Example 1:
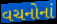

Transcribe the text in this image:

વચનોનાં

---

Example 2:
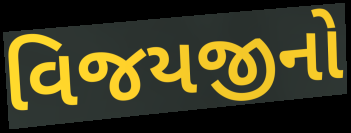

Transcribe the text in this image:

વિજયજીનો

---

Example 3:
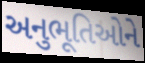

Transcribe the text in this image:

અનુભૂતિઓને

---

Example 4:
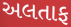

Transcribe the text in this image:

અલતાફ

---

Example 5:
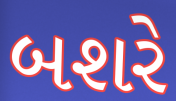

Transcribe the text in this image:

બશરે